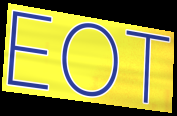
EOT